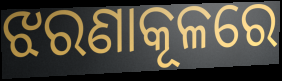
ଝରଣାକୂଳରେ